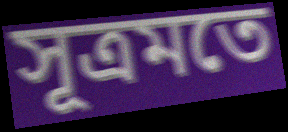
সূত্ৰমতে